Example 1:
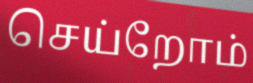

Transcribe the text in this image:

செய்றோம்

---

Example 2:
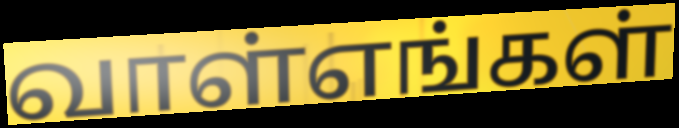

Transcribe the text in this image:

வாள்எங்கள்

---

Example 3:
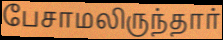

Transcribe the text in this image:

பேசாமலிருந்தார்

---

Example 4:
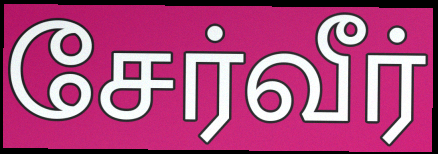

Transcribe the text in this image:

சேர்வீர்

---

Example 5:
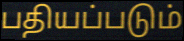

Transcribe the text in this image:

பதியப்படும்